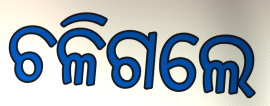
ଚଳିଗଲେ